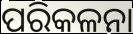
ପରିକଳନା